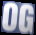
OG